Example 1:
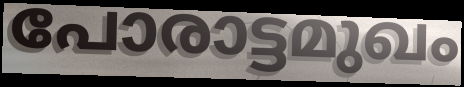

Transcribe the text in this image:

പോരാട്ടമുഖം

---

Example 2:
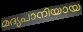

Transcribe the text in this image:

മദ്യപാനിയായ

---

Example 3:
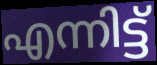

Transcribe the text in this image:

എന്നിട്ട്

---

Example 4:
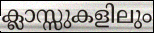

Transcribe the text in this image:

ക്ലാസ്സുകളിലും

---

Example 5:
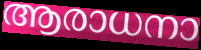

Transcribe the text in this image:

ആരാധനാ